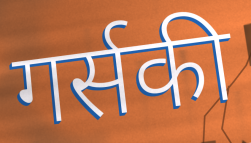
गर्सकी